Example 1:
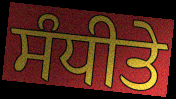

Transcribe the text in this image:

ਸੰਧੀਤੇ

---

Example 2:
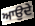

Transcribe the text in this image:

ਆਉਦੇ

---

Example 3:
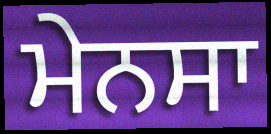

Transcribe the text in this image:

ਮੇਨਸਾ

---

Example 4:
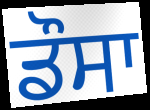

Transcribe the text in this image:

ਡੌਸਾ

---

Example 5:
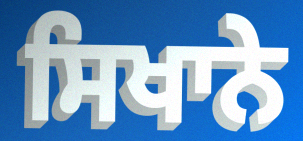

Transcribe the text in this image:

ਸਿਖਾਨੇ